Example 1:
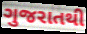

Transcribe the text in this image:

ગુજરાતથી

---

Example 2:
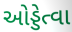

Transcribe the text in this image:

ઓડ્ડેત્વા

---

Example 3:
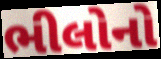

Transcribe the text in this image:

ભીલોનો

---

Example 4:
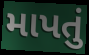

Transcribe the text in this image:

માપતું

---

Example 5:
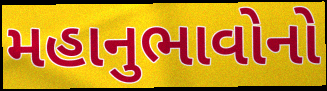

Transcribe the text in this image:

મહાનુભાવોનો